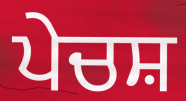
ਪੇਚਸ਼